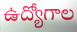
ఉద్యోగాల